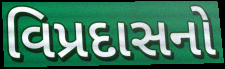
વિપ્રદાસનો